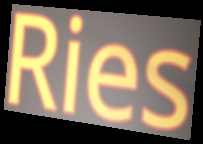
Ries